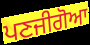
ਪਣਜੀਗੋਆ